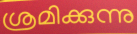
ശ്രമിക്കുന്നു